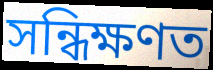
সন্ধিক্ষণত